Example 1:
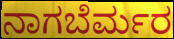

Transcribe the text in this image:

ನಾಗಬೆರ್ಮರ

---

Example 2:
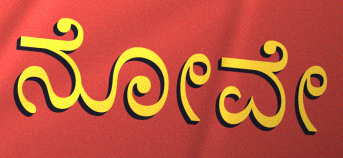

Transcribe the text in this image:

ನೋವೇ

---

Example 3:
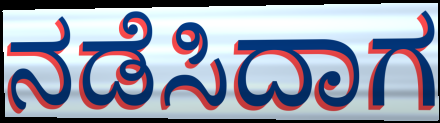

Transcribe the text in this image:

ನಡೆಸಿದಾಗ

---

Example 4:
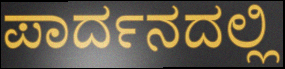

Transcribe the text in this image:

ಪಾರ್ದನದಲ್ಲಿ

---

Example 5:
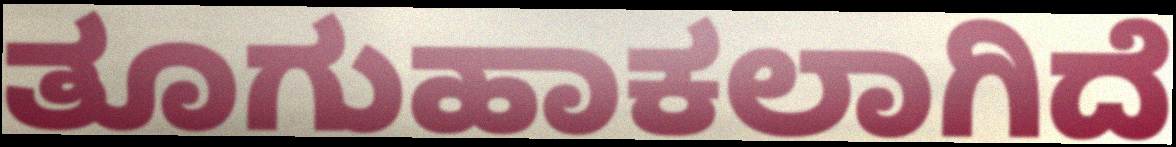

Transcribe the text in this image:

ತೂಗುಹಾಕಲಾಗಿದೆ